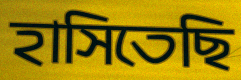
হাসিতেছি